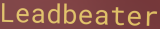
Leadbeater